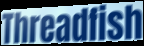
Threadfish